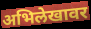
अभिलेखावर